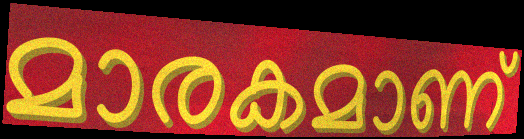
മാരകമാണ്